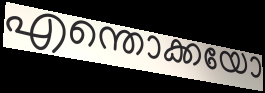
എന്തൊക്കയോ